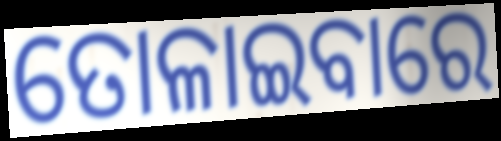
ତୋଳାଇବାରେ